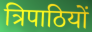
त्रिपाठियों